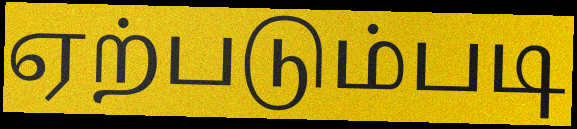
ஏற்படும்படி